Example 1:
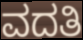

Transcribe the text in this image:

ವದತಿ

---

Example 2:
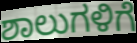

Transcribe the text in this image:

ಶಾಲುಗಳಿಗೆ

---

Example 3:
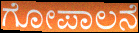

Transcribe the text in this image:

ಗೋಪಾಲನೆ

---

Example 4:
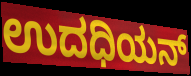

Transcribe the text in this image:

ಉದಧಿಯನ್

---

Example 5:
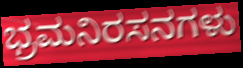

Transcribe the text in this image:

ಭ್ರಮನಿರಸನಗಳು